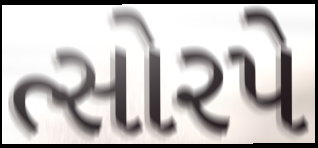
ત્સોરપે